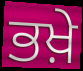
ਭਖ਼ੇ